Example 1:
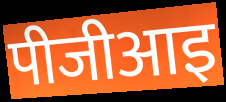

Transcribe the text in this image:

पीजीआइ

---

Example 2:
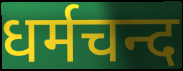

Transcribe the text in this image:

धर्मचन्द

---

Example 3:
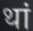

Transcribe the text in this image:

थां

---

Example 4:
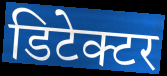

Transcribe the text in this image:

डिटेक्टर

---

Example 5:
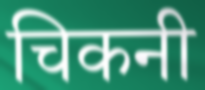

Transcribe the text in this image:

चिकनी